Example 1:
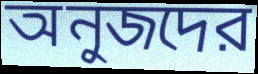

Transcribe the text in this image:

অনুজদের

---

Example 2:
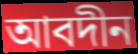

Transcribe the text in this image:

আবদীন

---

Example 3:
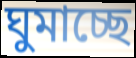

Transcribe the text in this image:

ঘুমাচ্ছে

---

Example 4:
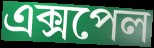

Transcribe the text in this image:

এক্সপেল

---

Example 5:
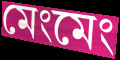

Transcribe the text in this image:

মেংমেং